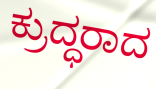
ಕ್ರುದ್ಧರಾದ